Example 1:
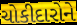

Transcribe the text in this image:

ચોકીદારોને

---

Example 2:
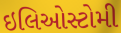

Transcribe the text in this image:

ઇલિઓસ્ટોમી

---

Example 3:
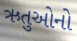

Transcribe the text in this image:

ઋતુઓનો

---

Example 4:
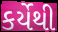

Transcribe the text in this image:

કર્યેથી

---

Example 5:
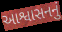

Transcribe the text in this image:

આશ્વાસનનું